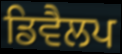
ਡਿਵੈਲਪ